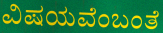
ವಿಷಯವೆಂಬಂತೆ